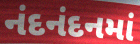
નંદનંદનમાં